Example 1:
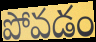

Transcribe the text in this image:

పోవడం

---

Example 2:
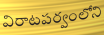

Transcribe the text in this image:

విరాటపర్వంలోని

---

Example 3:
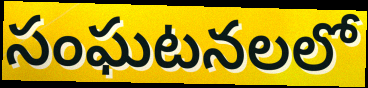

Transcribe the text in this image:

సంఘటనలలో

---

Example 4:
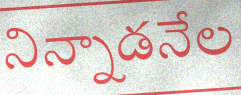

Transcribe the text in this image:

నిన్నాడనేల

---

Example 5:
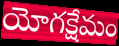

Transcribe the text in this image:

యోగక్షేమం